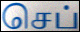
செப்